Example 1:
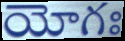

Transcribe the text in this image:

యోగః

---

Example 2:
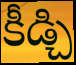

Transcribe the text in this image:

కీడ్చి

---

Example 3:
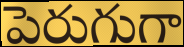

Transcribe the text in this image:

పెరుగుగా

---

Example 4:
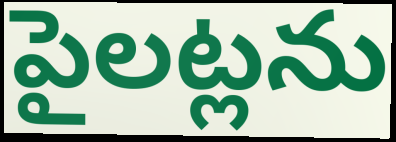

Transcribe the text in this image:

పైలట్లను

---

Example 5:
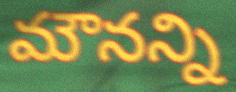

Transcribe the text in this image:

మౌనన్ని